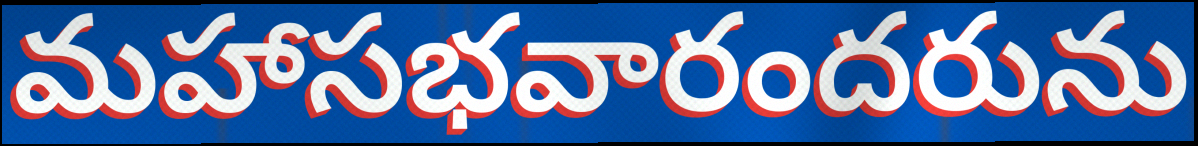
మహాసభవారందరును